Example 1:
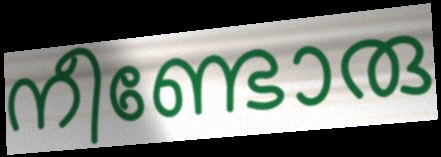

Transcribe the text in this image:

നീണ്ടോരു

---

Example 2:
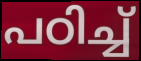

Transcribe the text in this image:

പഠിച്ച്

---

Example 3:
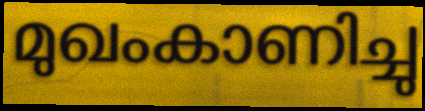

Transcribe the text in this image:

മുഖംകാണിച്ചു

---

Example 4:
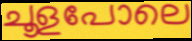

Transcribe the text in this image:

ചൂളപോലെ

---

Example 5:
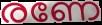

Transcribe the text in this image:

രണേ